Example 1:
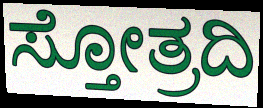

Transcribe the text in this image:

ಸ್ತೋತ್ರದಿ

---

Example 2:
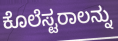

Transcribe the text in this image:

ಕೊಲೆಸ್ಟರಾಲನ್ನು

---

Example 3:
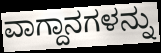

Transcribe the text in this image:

ವಾಗ್ದಾನಗಳನ್ನು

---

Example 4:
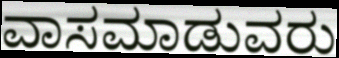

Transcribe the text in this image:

ವಾಸಮಾಡುವರು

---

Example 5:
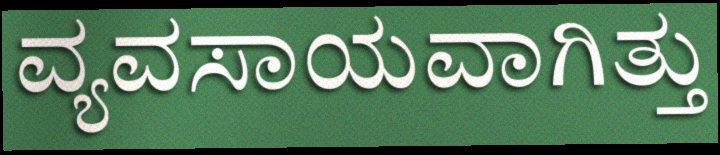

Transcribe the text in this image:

ವ್ಯವಸಾಯವಾಗಿತ್ತು